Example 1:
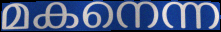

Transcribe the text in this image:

മകനെന്ന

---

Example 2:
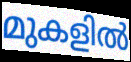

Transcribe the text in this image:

മുകളിൽ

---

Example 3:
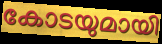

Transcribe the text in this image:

കോടയുമായി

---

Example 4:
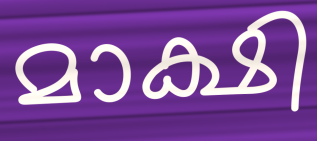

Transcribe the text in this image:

മാക്ഷി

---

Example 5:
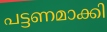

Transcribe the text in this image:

പട്ടണമാക്കി